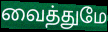
வைத்துமே